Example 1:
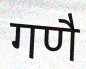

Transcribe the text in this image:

गणै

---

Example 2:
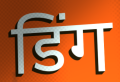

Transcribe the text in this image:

डिंग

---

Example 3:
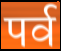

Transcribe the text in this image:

पर्व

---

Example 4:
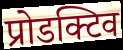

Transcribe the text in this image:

प्रोडक्टिव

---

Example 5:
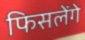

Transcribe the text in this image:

फिसलेंगे